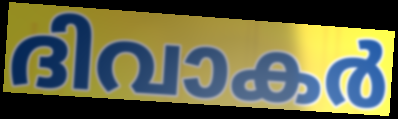
ദിവാകർ